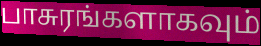
பாசுரங்களாகவும்